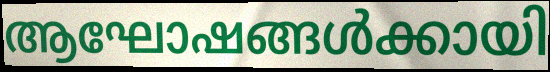
ആഘോഷങ്ങൾക്കായി